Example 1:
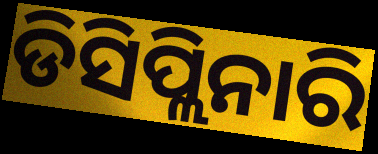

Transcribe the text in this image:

ଡିସିପ୍ଲିନାରି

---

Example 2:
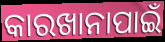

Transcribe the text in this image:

କାରଖାନାପାଇଁ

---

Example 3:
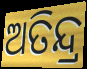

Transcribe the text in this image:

ଅତିନ୍ଦ୍ର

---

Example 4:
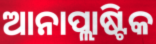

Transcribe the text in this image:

ଆନାପ୍ଲାଷ୍ଟିକ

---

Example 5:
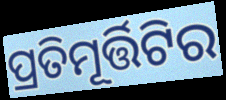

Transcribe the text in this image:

ପ୍ରତିମୂର୍ତ୍ତିଟିର